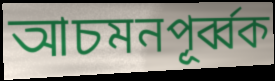
আচমনপূর্ব্বক